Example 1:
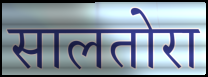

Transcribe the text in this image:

सालतोरा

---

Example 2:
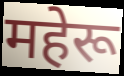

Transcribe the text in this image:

महेरू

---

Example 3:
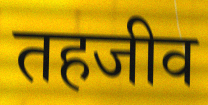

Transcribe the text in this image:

तहजीव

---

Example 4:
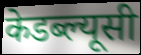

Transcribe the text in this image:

केडब्ल्यूसी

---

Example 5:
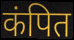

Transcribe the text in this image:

कंपित